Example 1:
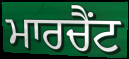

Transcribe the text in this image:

ਮਾਰਚੈਂਟ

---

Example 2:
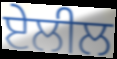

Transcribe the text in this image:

ਏਲੀਲ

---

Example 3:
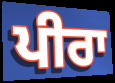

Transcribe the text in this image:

ਪੀਰਾ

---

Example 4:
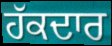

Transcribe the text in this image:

ਹੱਕਦਾਰ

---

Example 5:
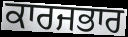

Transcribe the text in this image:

ਕਾਰਜਭਾਰ